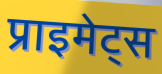
प्राइमेट्स